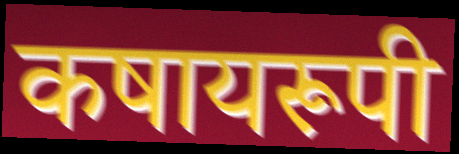
कषायरूपी